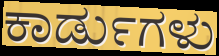
ಕಾರ್ಡುಗಳು